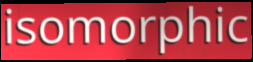
isomorphic